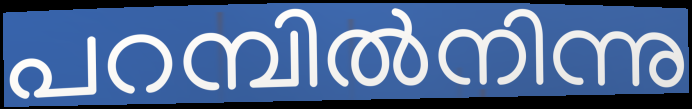
പറമ്പിൽനിന്നു